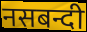
नसबन्दी